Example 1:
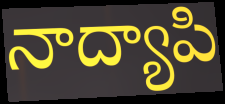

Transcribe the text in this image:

నాద్యాపి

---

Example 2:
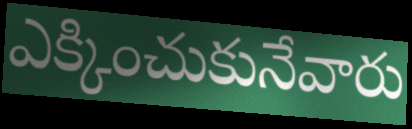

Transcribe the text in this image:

ఎక్కించుకునేవారు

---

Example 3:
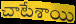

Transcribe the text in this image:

చాటేశాయి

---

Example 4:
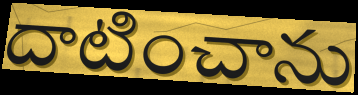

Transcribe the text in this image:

దాటించాను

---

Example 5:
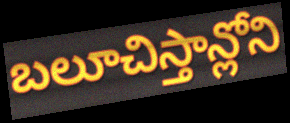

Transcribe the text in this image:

బలూచిస్తాన్లోని